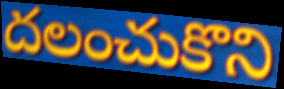
దలంచుకొని